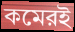
কমেরই